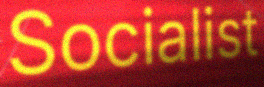
Socialist